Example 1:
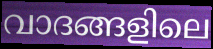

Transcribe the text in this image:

വാദങ്ങളിലെ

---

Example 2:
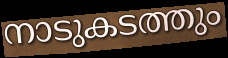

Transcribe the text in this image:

നാടുകടത്തും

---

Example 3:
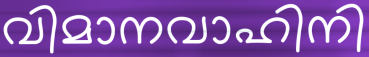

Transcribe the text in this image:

വിമാനവാഹിനി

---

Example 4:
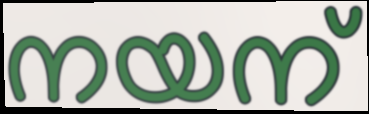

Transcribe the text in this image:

നയന്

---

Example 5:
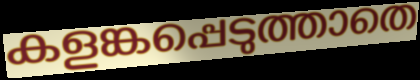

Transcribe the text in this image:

കളങ്കപ്പെടുത്താതെ